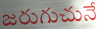
జరుగుచునే